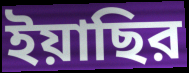
ইয়াছির